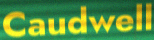
Caudwell